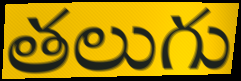
తలుగు